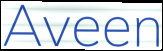
Aveen